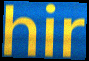
hir